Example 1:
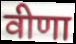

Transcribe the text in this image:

वीणा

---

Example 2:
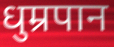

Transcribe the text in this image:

धुम्रपान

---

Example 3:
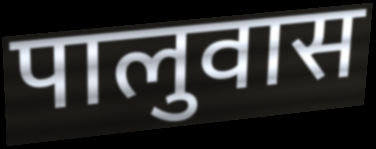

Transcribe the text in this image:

पालुवास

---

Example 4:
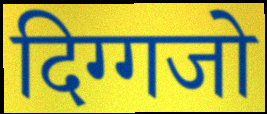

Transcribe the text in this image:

दिग्गजो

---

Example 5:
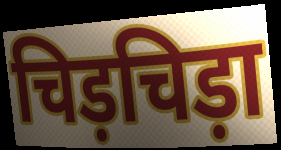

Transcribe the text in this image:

चिड़चिड़ा